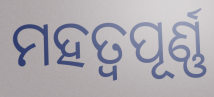
ମହତ୍ବପୂର୍ଣ୍ଣ